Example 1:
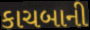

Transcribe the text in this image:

કાચબાની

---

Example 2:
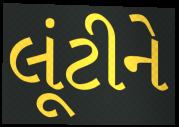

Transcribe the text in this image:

લૂંટીને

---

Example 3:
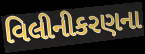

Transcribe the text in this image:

વિલીનીકરણના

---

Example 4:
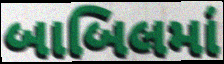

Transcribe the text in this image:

બાબિલમાં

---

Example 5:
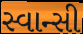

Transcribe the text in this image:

સ્વાન્સી